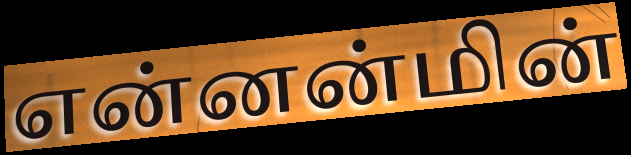
என்னன்மின்